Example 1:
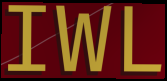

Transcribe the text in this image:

IWL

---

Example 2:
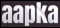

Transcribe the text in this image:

aapka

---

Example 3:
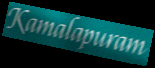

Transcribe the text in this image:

Kamalapuram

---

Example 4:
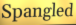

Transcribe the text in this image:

Spangled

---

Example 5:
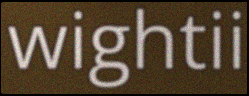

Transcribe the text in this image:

wightii